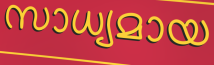
സാധ്യമായ